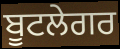
ਬੂਟਲੇਗਰ